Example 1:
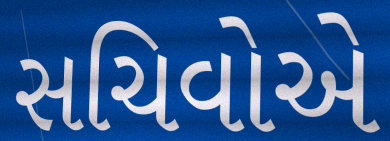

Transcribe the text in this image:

સચિવોએ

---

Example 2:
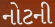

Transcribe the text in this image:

નોટની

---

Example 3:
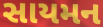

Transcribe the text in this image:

સાયમન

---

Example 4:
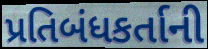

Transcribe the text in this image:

પ્રતિબંધકર્તાની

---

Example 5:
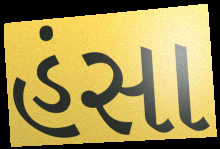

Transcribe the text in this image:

હંસા